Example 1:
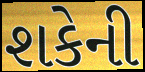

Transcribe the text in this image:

શકેની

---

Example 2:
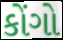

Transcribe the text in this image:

કોંગો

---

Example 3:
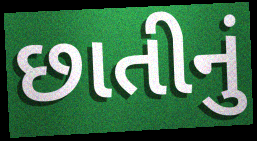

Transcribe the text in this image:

છાતીનું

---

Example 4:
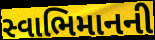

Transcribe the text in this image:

સ્વાભિમાનની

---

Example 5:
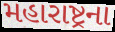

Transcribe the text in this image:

મહારાષ્ટ્રના